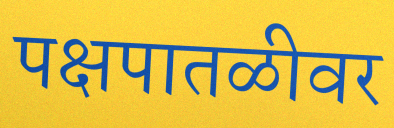
पक्षपातळीवर